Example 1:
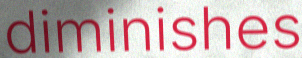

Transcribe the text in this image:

diminishes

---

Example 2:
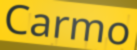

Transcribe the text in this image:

Carmo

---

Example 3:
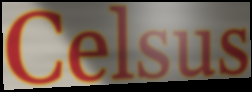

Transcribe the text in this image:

Celsus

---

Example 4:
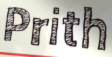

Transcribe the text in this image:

Prith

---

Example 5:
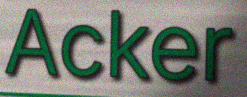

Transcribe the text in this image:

Acker